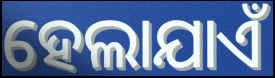
ହେଲାଯାଏଁ